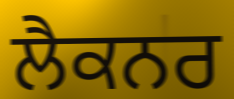
ਲੈਕਨਰ